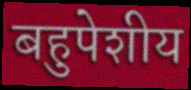
बहुपेशीय